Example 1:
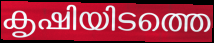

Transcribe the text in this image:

കൃഷിയിടത്തെ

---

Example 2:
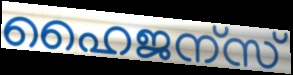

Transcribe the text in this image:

ഹൈജന്സ്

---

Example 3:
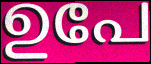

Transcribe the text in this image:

ഉപേ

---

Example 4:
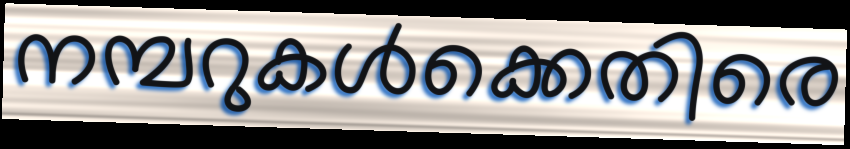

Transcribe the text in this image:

നമ്പറുകൾക്കെതിരെ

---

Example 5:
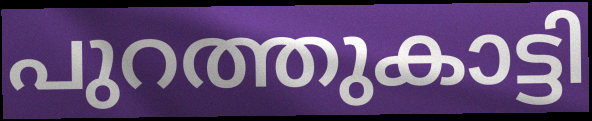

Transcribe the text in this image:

പുറത്തുകാട്ടി